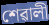
শেৱালী